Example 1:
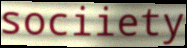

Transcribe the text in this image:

sociiety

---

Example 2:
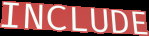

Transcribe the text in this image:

INCLUDE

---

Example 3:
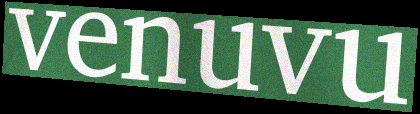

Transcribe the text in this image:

venuvu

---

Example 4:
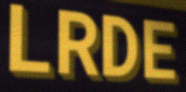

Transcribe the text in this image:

LRDE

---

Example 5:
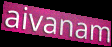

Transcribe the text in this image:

aivanam